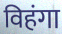
विहंगा